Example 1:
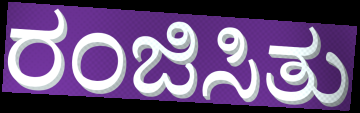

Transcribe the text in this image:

ರಂಜಿಸಿತು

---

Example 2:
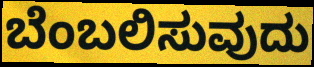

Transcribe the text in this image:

ಬೆಂಬಲಿಸುವುದು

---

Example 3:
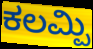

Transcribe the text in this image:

ಕಲಮ್ಪಿ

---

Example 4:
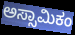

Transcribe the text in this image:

ಅಸ್ಸಾಮಿಕಂ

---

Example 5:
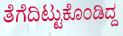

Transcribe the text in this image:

ತೆಗೆದಿಟ್ಟುಕೊಂಡಿದ್ದ